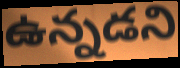
ఉన్నడని